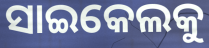
ସାଇକେଲକୁ